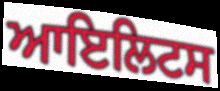
ਆਇਲਿਟਸ